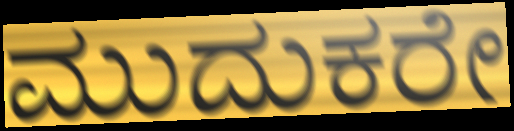
ಮುದುಕರೇ